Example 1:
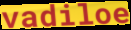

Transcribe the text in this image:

vadiloe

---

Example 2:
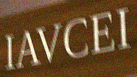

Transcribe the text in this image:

IAVCEI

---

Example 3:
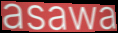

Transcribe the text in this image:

asawa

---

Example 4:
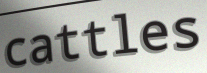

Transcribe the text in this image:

cattles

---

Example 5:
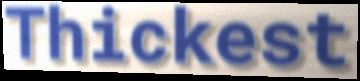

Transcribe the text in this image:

Thickest